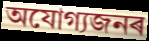
অযোগ্যজনৰ